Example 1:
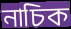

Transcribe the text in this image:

নাচিক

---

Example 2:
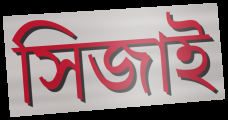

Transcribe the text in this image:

সিজাই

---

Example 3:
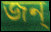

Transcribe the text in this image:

জন্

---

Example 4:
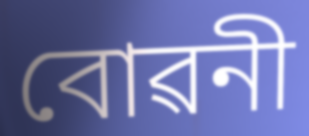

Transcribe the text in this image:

বোৱনী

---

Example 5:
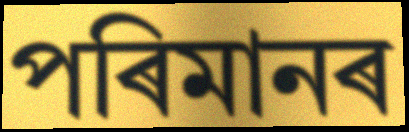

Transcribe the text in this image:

পৰিমানৰ